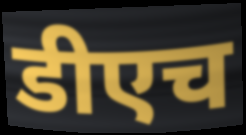
डीएच